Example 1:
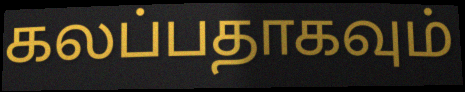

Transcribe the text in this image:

கலப்பதாகவும்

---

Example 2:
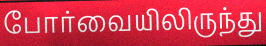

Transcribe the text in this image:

போர்வையிலிருந்து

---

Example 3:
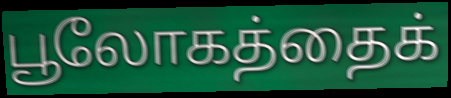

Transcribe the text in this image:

பூலோகத்தைக்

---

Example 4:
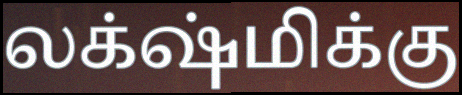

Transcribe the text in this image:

லக்‌ஷ்மிக்கு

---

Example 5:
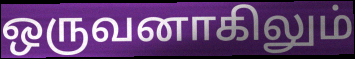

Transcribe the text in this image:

ஒருவனாகிலும்